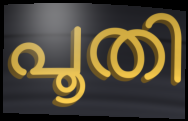
പൂതി